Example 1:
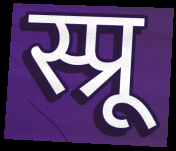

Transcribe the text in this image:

स्प्रू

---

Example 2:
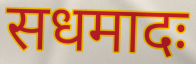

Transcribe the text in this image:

सधमादः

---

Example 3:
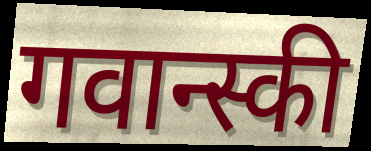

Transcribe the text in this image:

गवान्स्की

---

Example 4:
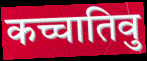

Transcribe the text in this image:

कच्चातिवु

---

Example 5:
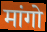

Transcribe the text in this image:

मांगो